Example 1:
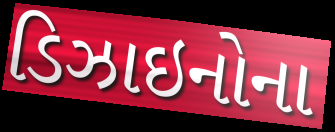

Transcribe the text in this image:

ડિઝાઇનોના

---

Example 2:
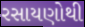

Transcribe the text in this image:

રસાયણોથી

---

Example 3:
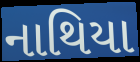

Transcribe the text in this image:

નાથિયા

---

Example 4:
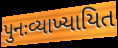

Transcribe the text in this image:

પુનઃવ્યાખ્યાયિત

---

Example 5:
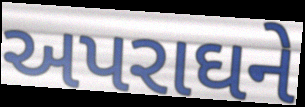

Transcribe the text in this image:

અપરાઘને